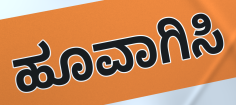
ಹೂವಾಗಿಸಿ